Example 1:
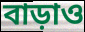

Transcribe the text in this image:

বাড়াও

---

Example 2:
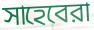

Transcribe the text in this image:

সাহেবেরা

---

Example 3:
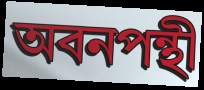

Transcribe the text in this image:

অবনপন্থী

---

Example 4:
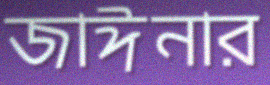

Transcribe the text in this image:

জাঈনার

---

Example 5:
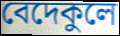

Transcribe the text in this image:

বেদেকুলে